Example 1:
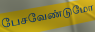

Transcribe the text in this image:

பேசவேண்டுமோ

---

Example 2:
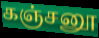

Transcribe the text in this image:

கஞ்சனூ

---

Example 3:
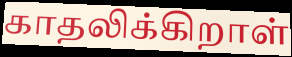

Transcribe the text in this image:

காதலிக்கிறாள்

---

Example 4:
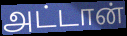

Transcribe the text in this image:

அட்டான்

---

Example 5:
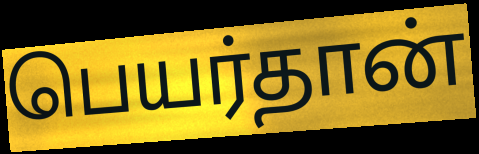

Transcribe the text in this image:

பெயர்தான்